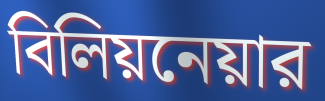
বিলিয়নেয়ার